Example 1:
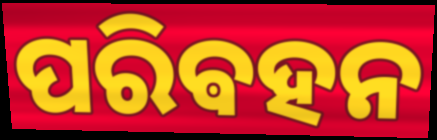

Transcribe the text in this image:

ପରିଵହନ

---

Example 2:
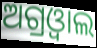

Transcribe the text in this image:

ଅଗ୍ରଓ୍ୱାଲ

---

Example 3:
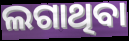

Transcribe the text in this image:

ଲଗାଥିବା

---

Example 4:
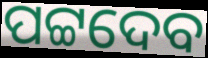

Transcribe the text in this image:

ପଟ୍ଟଦେବ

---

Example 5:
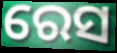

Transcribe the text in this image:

ରେସ